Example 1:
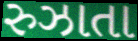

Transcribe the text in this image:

રુઝાતા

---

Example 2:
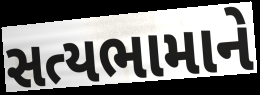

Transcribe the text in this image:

સત્યભામાને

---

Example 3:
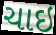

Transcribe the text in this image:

ચાઇ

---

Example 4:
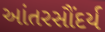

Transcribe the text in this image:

આંતરસૌંદર્ય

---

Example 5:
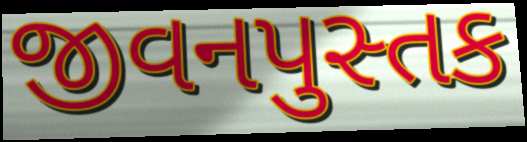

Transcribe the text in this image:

જીવનપુસ્તક